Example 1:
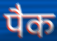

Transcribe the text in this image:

पैक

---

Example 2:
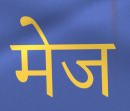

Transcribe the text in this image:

मेज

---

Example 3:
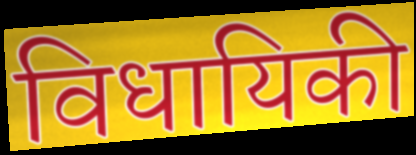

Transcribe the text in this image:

विधायिकी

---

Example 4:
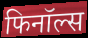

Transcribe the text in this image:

फिनॉल्स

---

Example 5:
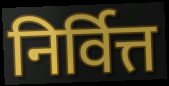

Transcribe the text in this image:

निर्वित्त